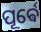
ପୂର୍ଵେ